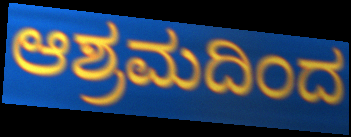
ಆಶ್ರಮದಿಂದ